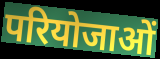
परियोजाओं